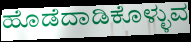
ಹೊಡೆದಾಡಿಕೊಳ್ಳುವ